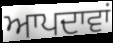
ਆਪਦਾਵਾਂ